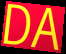
DA